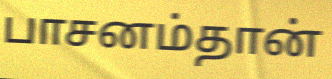
பாசனம்தான்